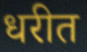
धरीत